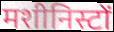
मशीनिस्टों